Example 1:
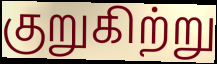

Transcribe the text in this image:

குறுகிற்று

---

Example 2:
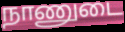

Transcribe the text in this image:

நாணுடை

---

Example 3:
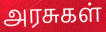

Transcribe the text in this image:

அரசுகள்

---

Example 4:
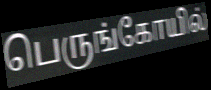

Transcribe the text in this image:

பெருங்கோயில்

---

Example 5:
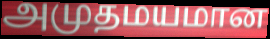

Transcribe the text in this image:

அமுதமயமான